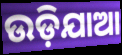
ଉଡ଼ିଯାଆ